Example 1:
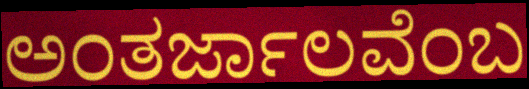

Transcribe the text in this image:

ಅಂತರ್ಜಾಲವೆಂಬ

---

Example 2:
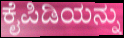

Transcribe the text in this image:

ಕೈಪಿಡಿಯನ್ನು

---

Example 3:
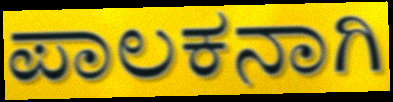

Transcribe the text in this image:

ಪಾಲಕನಾಗಿ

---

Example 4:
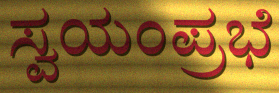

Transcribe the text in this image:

ಸ್ವಯಂಪ್ರಭೆ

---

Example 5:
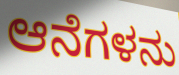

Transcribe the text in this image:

ಆನೆಗಳನು